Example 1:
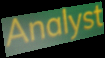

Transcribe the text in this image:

Analyst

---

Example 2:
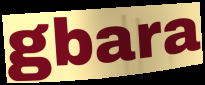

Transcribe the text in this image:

gbara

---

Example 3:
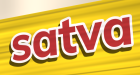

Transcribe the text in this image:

satva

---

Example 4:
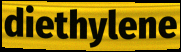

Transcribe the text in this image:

diethylene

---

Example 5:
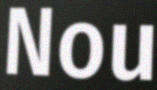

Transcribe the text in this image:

Nou